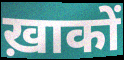
ख़ाकों